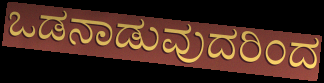
ಒಡನಾಡುವುದರಿಂದ